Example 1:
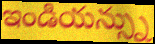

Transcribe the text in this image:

ఇండియన్స్ను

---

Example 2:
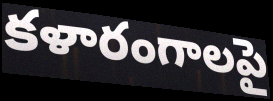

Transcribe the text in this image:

కళారంగాలపై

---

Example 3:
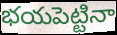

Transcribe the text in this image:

భయపెట్టినా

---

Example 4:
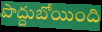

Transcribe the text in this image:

పొద్దుబోయింది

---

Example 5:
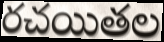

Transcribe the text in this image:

రచయితల